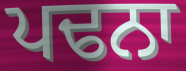
ਪਢਨਾ